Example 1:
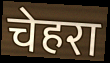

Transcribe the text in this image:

चेहरा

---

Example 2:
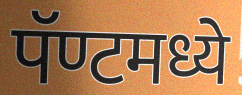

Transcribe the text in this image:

पॅण्टमध्ये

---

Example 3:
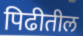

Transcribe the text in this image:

पिढीतील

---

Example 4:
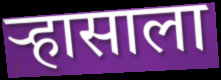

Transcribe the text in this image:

ऱ्हासाला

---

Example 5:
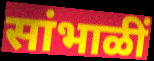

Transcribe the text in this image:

सांभाळीं